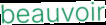
beauvoir